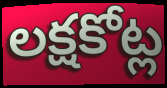
లక్షకోట్ల